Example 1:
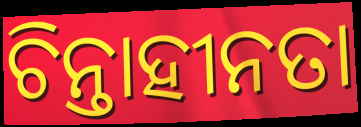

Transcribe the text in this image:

ଚିନ୍ତାହୀନତା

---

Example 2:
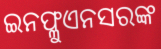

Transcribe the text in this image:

ଇନଫ୍ଳୁଏନସରଙ୍କ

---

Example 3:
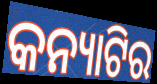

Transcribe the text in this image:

କନ୍ୟାଟିର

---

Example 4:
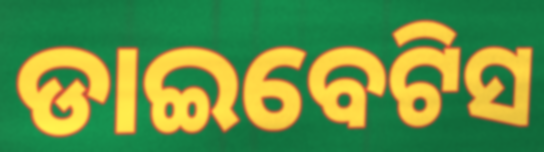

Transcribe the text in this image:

ଡାଇବେଟିସ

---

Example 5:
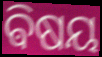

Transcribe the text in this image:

ଵିଷୟ